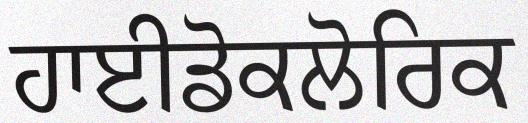
ਹਾਈਡੋਕਲੋਰਿਕ